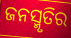
ଜନସ୍ମୃତିର